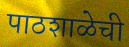
पाठशाळेची